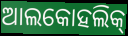
ଆଲକୋହଲିକ୍